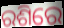
ରଶିରେ